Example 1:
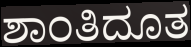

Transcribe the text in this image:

ಶಾಂತಿದೂತ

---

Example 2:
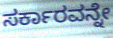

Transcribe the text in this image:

ಸರ್ಕಾರವನ್ನೇ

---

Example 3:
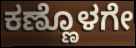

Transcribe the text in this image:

ಕಣ್ಣೊಳಗೇ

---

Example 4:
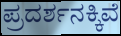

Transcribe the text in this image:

ಪ್ರದರ್ಶನಕ್ಕಿವೆ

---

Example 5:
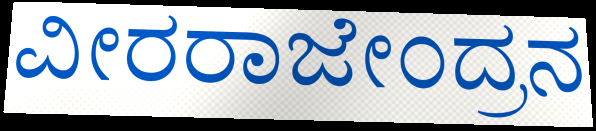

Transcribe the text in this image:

ವೀರರಾಜೇಂದ್ರನ